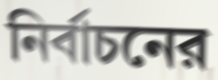
নির্বাচনের